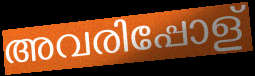
അവരിപ്പോള്